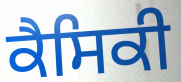
ਕੈਸਿਕੀ